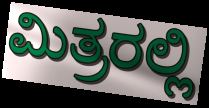
ಮಿತ್ರರಲ್ಲಿ